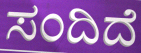
ಸಂದಿದೆ